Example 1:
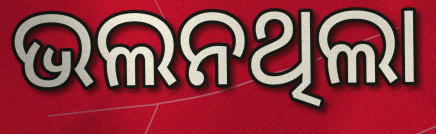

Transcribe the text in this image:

ଭଲନଥିଲା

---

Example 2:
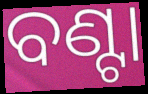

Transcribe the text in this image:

ବଣ୍ଟା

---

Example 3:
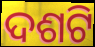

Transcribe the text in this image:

ଦଶଟି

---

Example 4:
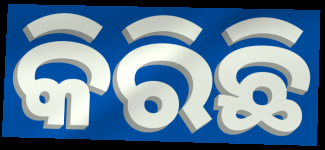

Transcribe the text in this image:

କିରିଛି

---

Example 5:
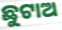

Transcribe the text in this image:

ଛୁଟାଅ